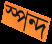
স্পন্দ